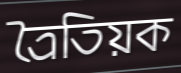
ত্ৰৈতিয়ক